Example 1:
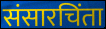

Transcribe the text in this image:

संसारचिंता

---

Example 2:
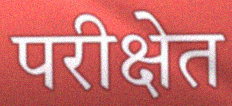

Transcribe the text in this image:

परीक्षेत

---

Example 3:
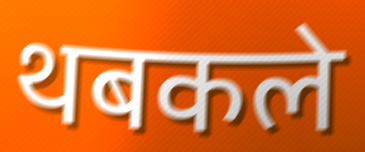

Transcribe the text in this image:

थबकले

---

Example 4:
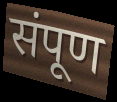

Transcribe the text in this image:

संपूण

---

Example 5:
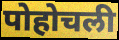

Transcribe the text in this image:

पोहोचली